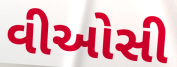
વીઓસી